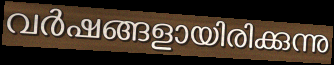
വർഷങ്ങളായിരിക്കുന്നു